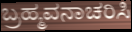
ಬ್ರಹ್ಮವನಾಚರಿಸಿ